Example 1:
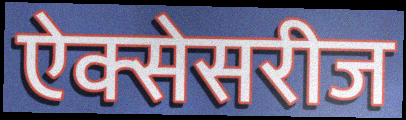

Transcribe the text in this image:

ऐक्सेसरीज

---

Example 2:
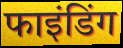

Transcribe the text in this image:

फाइंडिंग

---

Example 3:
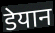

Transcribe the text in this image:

डेयान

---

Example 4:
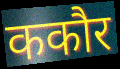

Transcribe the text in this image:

ककौर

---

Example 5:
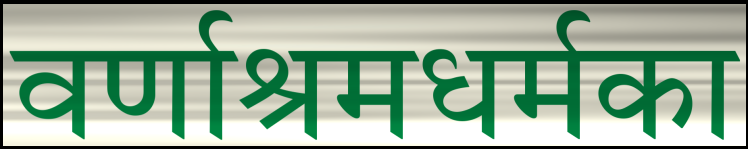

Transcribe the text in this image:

वर्णाश्रमधर्मका